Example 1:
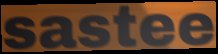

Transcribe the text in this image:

sastee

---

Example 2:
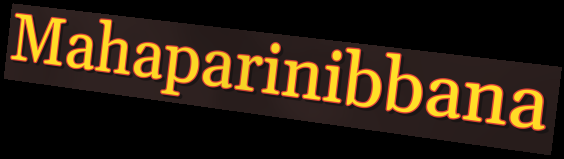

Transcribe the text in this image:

Mahaparinibbana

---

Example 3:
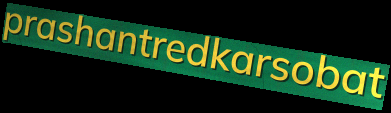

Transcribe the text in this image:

prashantredkarsobat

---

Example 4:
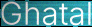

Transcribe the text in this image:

Ghatal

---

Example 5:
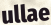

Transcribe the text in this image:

ullae